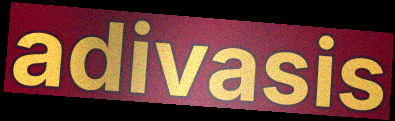
adivasis